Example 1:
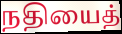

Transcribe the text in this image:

நதியைத்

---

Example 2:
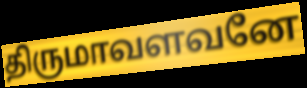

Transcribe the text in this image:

திருமாவளவனே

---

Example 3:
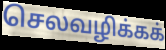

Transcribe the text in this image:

செலவழிக்கக்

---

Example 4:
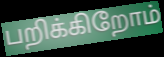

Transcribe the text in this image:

பறிக்கிறோம்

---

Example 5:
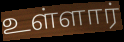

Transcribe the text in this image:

உள்ளார்